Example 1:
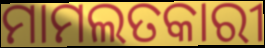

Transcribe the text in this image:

ମାମଲତକାରୀ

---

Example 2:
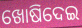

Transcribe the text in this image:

ଖୋଷିଦେଇ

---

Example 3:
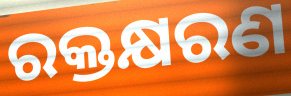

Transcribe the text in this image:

ରକ୍ତକ୍ଷରଣ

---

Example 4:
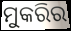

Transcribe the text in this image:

ମୁକରିର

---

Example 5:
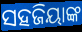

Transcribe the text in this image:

ସହଜିୟାଙ୍କ